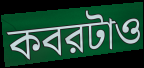
কবরটাও